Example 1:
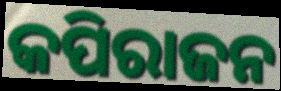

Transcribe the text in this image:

କପିରାଜନ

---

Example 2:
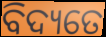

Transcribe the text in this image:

ବିଦ୍ୟତେ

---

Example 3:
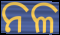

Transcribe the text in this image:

ନଳ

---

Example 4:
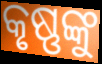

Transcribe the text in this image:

କୃଷ୍ଣଙ୍କୁ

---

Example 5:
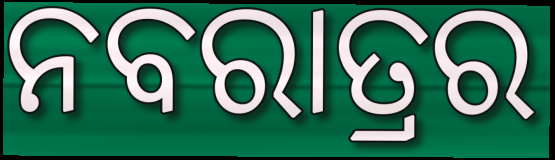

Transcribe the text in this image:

ନବରାତ୍ରର